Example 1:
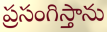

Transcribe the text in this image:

ప్రసంగిస్తాను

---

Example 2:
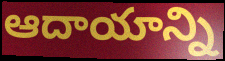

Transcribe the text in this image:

ఆదాయాన్ని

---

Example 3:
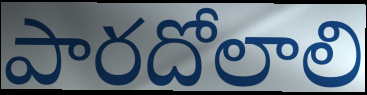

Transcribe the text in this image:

పారదోలాలి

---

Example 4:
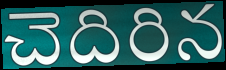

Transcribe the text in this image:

చెదిరిన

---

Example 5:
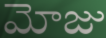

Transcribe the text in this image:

మోజు